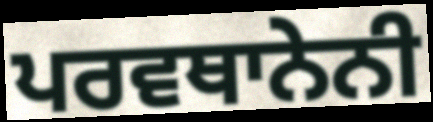
ਪਰਵਥਾਨੇਨੀ